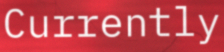
Currently